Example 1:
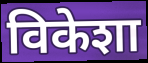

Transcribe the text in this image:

विकेशा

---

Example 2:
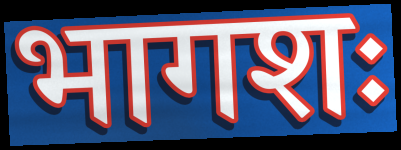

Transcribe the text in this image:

भागशः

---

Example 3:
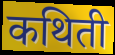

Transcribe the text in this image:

कथिती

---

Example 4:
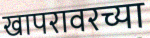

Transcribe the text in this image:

खापरावरच्या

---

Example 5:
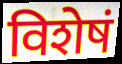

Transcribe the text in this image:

विशेषं